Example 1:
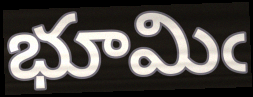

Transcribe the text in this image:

భూమిఁ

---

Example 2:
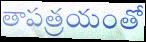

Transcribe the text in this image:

తాపత్రయంతో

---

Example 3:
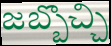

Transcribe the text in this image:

జబ్బొచ్చి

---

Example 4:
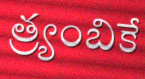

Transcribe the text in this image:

త్ర్యంబికే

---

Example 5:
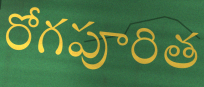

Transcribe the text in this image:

రోగపూరిత